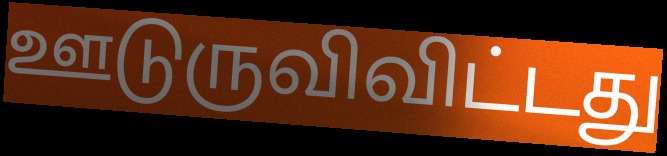
ஊடுருவிவிட்டது